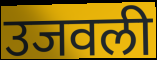
उजवली